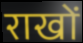
राखों